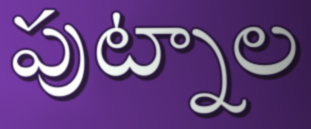
పుట్నాల